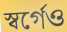
স্বর্গেও